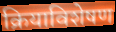
क्रियाविशेषण